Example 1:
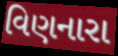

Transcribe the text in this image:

વિણનારા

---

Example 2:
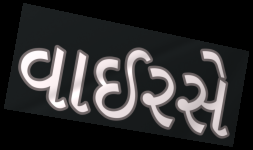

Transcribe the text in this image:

વાઈરસે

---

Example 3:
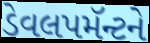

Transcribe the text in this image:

ડેવલપમૅન્ટને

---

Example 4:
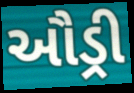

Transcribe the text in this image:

ઔડ્રી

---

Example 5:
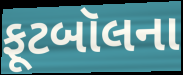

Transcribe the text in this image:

ફૂટબૉલના